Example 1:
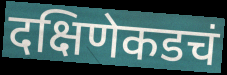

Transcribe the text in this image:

दक्षिणेकडचं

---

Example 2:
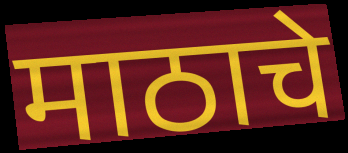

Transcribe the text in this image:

माठाचे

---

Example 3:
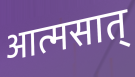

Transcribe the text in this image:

आत्मसात्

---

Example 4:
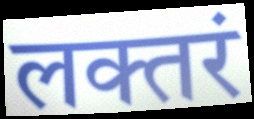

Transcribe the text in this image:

लक्तरं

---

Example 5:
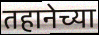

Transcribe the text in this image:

तहानेच्या